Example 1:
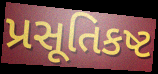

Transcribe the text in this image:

પ્રસૂતિકષ્ટ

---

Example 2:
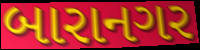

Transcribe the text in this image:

બારાનગર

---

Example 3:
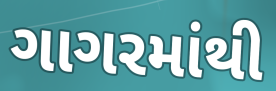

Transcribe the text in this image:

ગાગરમાંથી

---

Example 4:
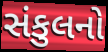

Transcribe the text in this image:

સંકુલનો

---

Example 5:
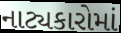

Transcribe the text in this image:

નાટ્યકારોમાં